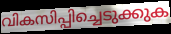
വികസിപ്പിച്ചെടുക്കുക